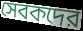
সেবকদের